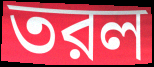
তরল